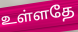
உள்ளதே